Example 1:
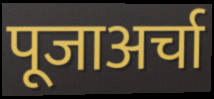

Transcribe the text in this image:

पूजाअर्चा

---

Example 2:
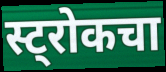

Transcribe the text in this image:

स्ट्रोकचा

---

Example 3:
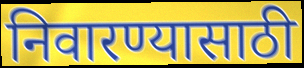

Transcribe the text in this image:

निवारण्यासाठी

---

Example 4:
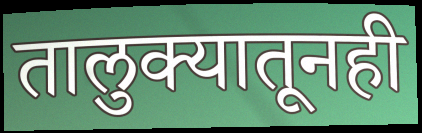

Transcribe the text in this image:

तालुक्यातूनही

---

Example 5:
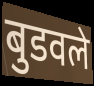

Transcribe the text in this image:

बुडवले